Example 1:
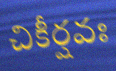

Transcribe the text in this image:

చికీర్షవః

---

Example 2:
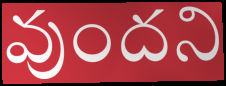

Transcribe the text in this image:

వుందని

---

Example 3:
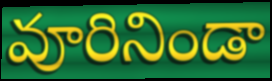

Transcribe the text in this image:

వూరినిండా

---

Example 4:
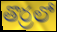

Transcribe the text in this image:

తొర్రలో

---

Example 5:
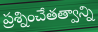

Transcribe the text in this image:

ప్రశ్నించేతత్వాన్ని